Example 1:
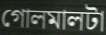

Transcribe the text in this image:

গোলমালটা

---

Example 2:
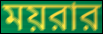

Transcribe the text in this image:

ময়রার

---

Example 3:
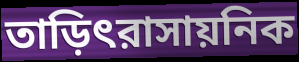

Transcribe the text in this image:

তাড়িৎরাসায়নিক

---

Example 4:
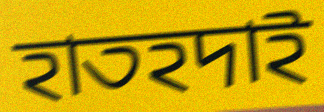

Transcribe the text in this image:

হাতহদাই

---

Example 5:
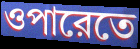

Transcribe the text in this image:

ওপারেতে